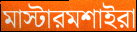
মাস্টারমশাইরা